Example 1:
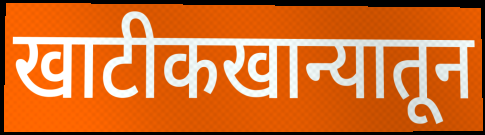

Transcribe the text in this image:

खाटीकखान्यातून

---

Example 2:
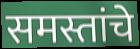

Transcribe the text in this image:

समस्तांचे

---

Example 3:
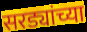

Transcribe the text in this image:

सरड्यांच्या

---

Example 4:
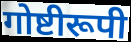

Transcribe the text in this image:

गोष्टीरूपी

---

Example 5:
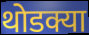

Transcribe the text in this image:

थोडक्या